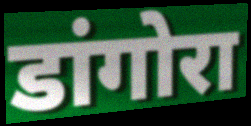
डांगोरा